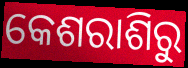
କେଶରାଶିରୁ